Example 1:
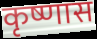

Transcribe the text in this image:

कृष्णास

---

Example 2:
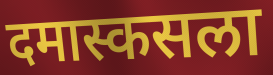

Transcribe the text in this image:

दमास्कसला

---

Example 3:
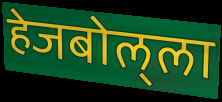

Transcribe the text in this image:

हेजबोल्ला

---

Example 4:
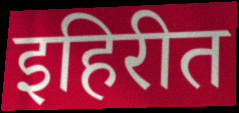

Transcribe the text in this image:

इहिरीत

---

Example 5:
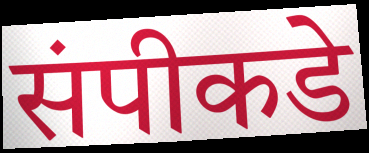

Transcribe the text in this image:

संपीकडे